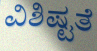
ವಿಶಿಷ್ಟತೆ